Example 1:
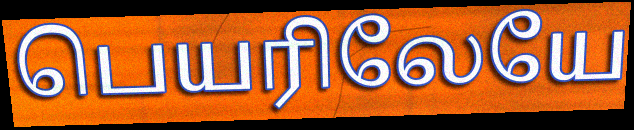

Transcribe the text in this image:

பெயரிலேயே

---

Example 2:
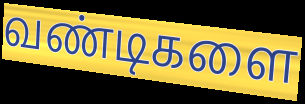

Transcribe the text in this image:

வண்டிகளை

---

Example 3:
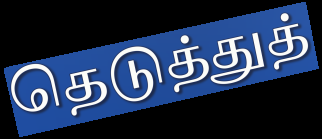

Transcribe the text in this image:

தெடுத்துத்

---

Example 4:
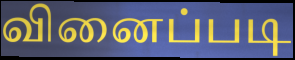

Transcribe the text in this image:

வினைப்படி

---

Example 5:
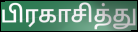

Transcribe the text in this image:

பிரகாசித்து